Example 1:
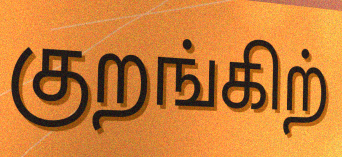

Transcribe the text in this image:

குறங்கிற்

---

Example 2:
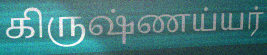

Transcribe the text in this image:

கிருஷ்ணய்யர்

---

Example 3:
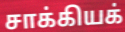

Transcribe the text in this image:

சாக்கியக்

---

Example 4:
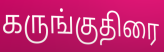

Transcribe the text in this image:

கருங்குதிரை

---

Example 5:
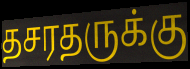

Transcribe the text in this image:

தசரதருக்கு